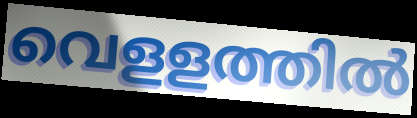
വെളളത്തിൽ